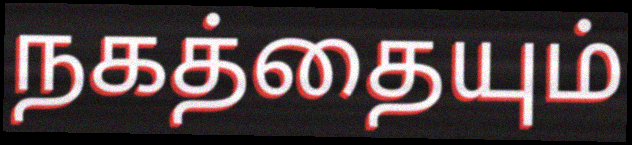
நகத்தையும்